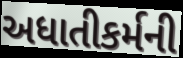
અધાતીકર્મની